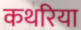
कथरिया